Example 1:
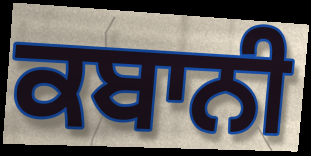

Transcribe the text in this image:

ਕਬਾਨੀ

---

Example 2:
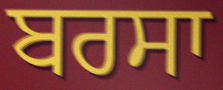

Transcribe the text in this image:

ਬਰਸਾ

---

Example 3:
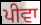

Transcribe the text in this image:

ਪੀਵਾ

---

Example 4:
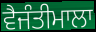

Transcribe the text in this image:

ਵੈਜੰਤੀਮਾਲਾ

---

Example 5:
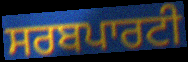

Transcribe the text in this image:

ਸਰਬਪਾਰਟੀ